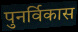
पुनर्विकास